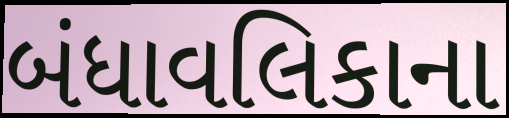
બંધાવલિકાના